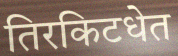
तिरकिटधेत